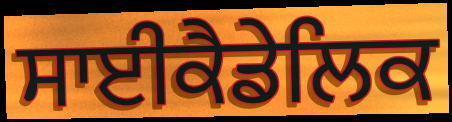
ਸਾਈਕੈਡੇਲਿਕ